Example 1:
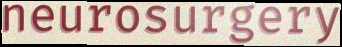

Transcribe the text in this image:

neurosurgery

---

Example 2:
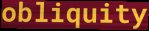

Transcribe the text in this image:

obliquity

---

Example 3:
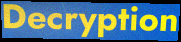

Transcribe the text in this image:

Decryption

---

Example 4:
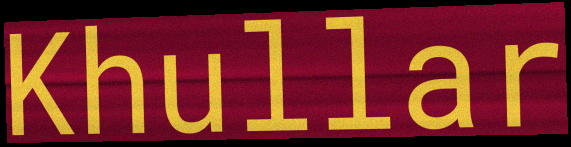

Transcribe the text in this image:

Khullar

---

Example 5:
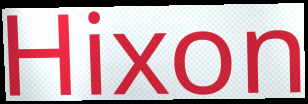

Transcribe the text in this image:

Hixon